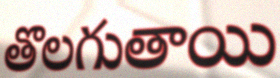
తొలగుతాయి